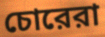
চোরেরা